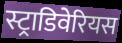
स्ट्राडिवेरियस